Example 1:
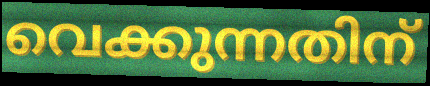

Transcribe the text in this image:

വെക്കുന്നതിന്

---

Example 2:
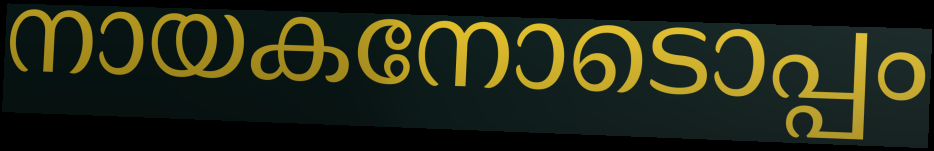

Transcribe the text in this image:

നായകനോടൊപ്പം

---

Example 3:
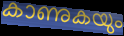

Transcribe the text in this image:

കാണുകയും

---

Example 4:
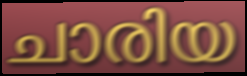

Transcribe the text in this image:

ചാരിയ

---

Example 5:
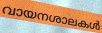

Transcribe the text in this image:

വായനശാലകൾ